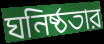
ঘনিষ্ঠতার